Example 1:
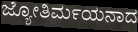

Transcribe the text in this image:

ಜ್ಯೋತಿರ್ಮಯನಾದ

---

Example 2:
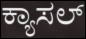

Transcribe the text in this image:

ಕ್ಯಾಸಲ್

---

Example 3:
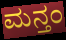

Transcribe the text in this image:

ಮನ್ತಂ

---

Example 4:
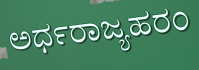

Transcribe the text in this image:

ಅರ್ಧರಾಜ್ಯಹರಂ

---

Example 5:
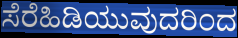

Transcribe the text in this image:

ಸೆರೆಹಿಡಿಯುವುದರಿಂದ